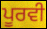
ਪੂਰਵੀ